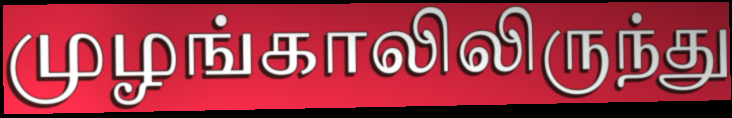
முழங்காலிலிருந்து